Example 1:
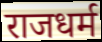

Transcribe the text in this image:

राजधर्म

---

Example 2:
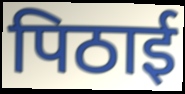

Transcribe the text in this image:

पिठाई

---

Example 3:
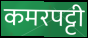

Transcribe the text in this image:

कमरपट्टी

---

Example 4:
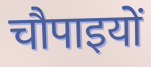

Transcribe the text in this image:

चौपाइयों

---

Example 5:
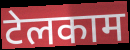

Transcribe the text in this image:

टेलकाम